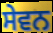
ਸੇਵਨ